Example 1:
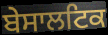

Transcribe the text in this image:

ਬੇਸਾਲਟਿਕ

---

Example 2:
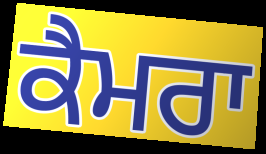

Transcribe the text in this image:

ਕੈਮਰਾ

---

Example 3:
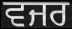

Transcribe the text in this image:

ਵਜਰ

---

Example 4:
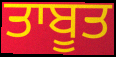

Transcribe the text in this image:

ਤਾਬੂਤ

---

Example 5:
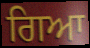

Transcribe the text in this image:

ਗਿਆ